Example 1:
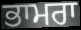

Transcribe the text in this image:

ਭਾਮਰਾ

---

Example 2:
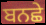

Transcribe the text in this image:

ਬਨਛੇ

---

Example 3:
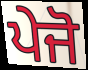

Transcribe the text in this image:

ਪੇਜੋ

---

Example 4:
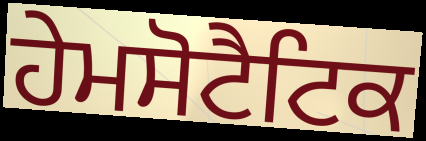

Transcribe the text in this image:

ਹੇਮਸੋਟੈਟਿਕ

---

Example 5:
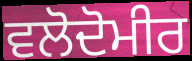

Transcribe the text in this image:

ਵਲੋਦੋਮੀਰ